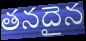
తనదైన